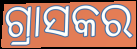
ଗ୍ରାସକର